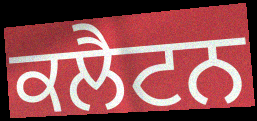
ਕਲੈਟਨ